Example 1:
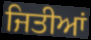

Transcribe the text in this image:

ਜਿਤੀਆਂ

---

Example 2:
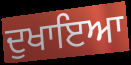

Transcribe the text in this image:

ਦੁਖਾਇਆ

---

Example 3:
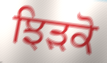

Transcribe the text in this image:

ਝਿੜਕੋ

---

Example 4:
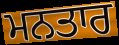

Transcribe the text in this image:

ਮਨਤਾਰ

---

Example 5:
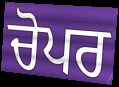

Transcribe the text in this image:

ਚੋਪਰ